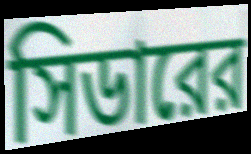
সিডারের